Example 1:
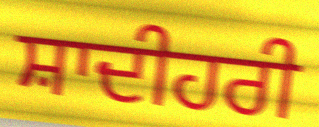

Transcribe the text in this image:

ਸ਼ਾਦੀਹਰੀ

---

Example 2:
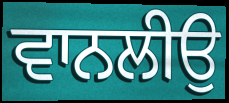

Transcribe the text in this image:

ਵਾਨਲੀਉ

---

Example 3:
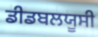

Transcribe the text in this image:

ਡੀਡਬਲਯੂਸੀ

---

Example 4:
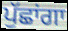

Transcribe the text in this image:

ਪੁੱਛਾਂਗਾ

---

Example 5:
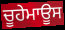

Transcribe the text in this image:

ਚੂਹੇਮਾਊਸ